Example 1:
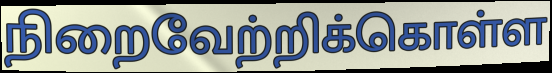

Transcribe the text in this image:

நிறைவேற்றிக்கொள்ள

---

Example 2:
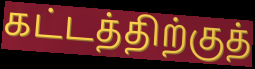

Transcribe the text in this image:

கட்டத்திற்குத்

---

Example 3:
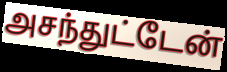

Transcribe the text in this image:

அசந்துட்டேன்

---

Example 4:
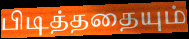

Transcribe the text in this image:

பிடித்ததையும்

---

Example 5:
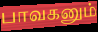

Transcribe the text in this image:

பாவகனும்